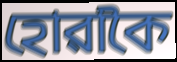
হোৱাকৈ